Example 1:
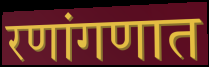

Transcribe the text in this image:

रणांगणात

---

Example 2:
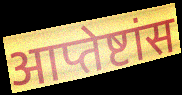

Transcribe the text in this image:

आप्तेष्टांस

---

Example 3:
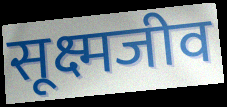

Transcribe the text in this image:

सूक्ष्मजीव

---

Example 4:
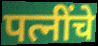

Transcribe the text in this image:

पत्नींचे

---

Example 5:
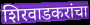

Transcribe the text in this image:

शिरवाडकरांचा